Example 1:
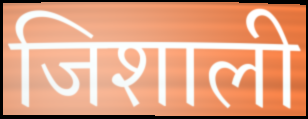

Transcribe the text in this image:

जिशाली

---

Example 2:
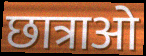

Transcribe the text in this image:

छात्राओ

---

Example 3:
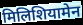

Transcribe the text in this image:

मिलिशियामेन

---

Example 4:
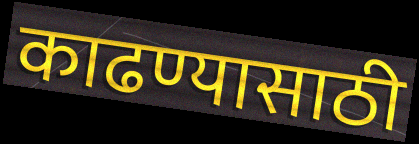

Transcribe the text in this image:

काढण्यासाठी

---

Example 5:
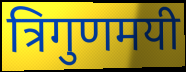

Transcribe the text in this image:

त्रिगुणमयी